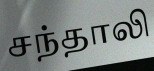
சந்தாலி